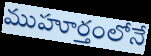
ముహూర్తంలోనే